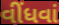
વીંધવાં